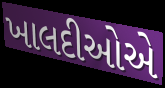
ખાલદીઓએ